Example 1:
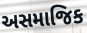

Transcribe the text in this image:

અસમાજિક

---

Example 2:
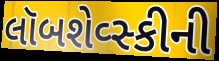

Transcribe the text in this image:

લૉબશેવ્સ્કીની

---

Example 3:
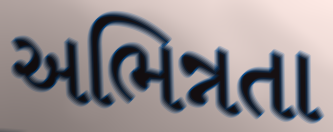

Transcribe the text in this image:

અભિન્નતા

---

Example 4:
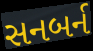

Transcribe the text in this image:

સનબર્ન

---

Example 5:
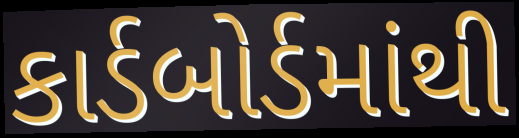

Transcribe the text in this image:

કાર્ડબોર્ડમાંથી